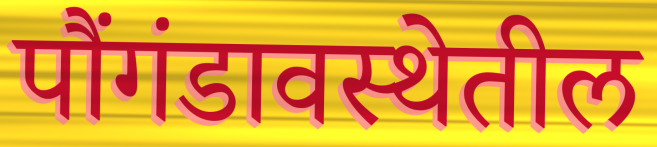
पौंगंडावस्थेतील